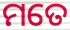
ମତେ